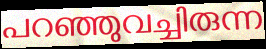
പറഞ്ഞുവച്ചിരുന്ന